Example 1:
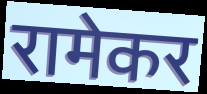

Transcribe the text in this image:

रामेकर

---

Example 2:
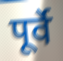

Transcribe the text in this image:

पूर्वे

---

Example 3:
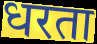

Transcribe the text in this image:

धरता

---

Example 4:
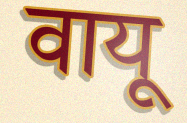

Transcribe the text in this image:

वायू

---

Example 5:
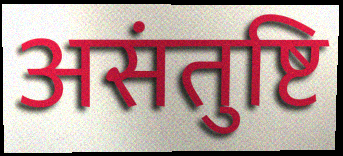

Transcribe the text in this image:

असंतुष्टि